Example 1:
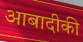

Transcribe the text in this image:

आबादीकी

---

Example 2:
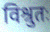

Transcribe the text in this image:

विश्रुतः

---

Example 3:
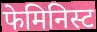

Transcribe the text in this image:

फेमिनिस्ट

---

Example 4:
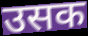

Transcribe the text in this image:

उसक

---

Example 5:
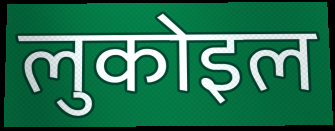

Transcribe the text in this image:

लुकोइल